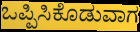
ಒಪ್ಪಿಸಿಕೊಡುವಾಗ